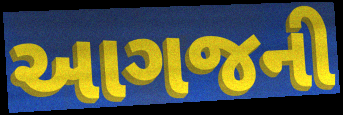
આગજની